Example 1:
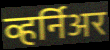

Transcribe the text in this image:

व्हर्निअर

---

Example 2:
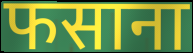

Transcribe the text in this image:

फसाना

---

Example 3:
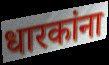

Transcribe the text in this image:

धारकांना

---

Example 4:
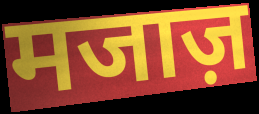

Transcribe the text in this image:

मजाज़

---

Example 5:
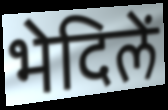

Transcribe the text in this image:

भेदिलें